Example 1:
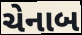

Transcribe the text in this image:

ચેનાબ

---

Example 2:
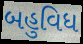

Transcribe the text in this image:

બહુવિધ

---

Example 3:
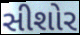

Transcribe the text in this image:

સીશોર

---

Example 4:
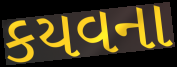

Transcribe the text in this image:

કયવના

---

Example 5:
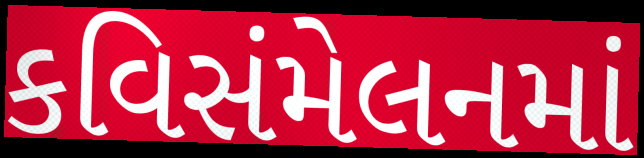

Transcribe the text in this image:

કવિસંમેલનમાં